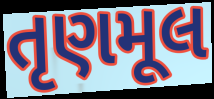
તૃણમૂલ